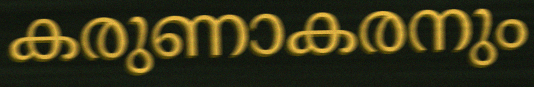
കരുണാകരനും